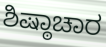
ಶಿಷ್ಠಾಚಾರ